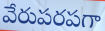
వేరుపరపగా